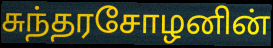
சுந்தரசோழனின்